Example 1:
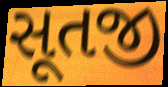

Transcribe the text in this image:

સૂતજી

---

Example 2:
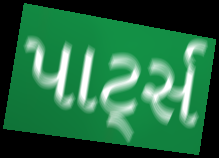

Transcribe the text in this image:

પાર્ટ્સ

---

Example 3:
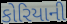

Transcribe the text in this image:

કોરિયાની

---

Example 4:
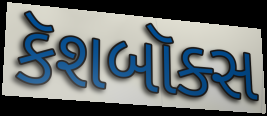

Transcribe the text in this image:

કૅશબૉક્સ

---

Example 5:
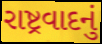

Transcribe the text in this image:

રાષ્ટ્રવાદનું